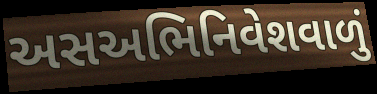
અસઅભિનિવેશવાળું